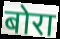
बोरा